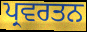
ਪ੍ਰਵਰਤਨ